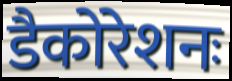
डैकोरेशनः